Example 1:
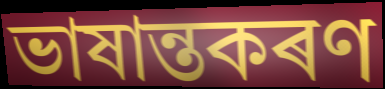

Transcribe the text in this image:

ভাষান্তকৰণ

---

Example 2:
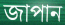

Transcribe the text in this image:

জাপান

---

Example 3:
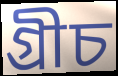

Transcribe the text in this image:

গ্ৰীচ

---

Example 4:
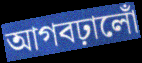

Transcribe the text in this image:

আগবঢ়ালোঁ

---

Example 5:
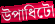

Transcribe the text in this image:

উপাধিটো